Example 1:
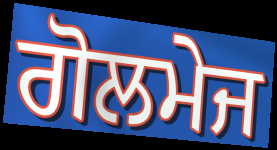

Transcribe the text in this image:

ਗੋਲਮੇਜ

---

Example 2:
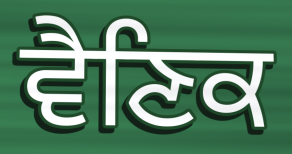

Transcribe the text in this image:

ਵੈਣਿਕ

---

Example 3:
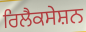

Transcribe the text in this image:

ਰਿਲੈਕਸੇਸ਼ਨ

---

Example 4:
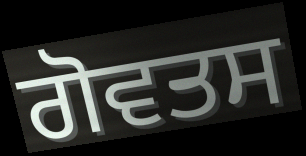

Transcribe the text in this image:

ਗੋਵਤਸ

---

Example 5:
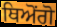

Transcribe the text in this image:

ਥਿਅੋਂਗੋ